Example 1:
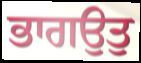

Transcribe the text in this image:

ਭਾਗਉਤੁ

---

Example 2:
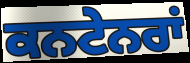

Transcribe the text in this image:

ਕਨਟੇਨਰਾਂ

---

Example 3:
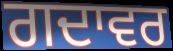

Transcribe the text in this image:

ਗਦਾਵਰ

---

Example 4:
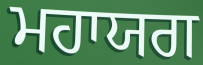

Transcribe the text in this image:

ਮਹਾਯਗ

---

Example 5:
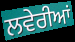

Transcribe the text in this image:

ਲਵੇਰੀਆਂ